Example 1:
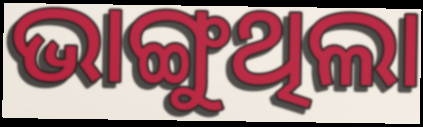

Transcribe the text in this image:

ଭାଙ୍ଗୁଥିଲା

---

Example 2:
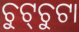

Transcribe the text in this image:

ଚୁଟ୍‌ଚୁଟା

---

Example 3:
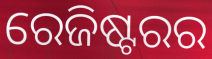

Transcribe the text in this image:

ରେଜିଷ୍ଟରର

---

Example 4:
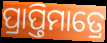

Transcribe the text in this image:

ପ୍ରାପ୍ତିମାତ୍ରେ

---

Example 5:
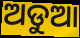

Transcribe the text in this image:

ଅଡୁଆ